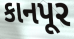
કાનપૂર